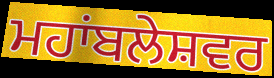
ਮਹਾਂਬਲੇਸ਼ਵਰ